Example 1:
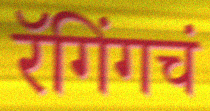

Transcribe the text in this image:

रॅगिंगचं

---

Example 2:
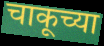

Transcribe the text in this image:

चाकूच्या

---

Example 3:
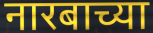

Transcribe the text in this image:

नारबाच्या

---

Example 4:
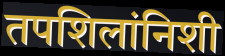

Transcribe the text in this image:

तपशिलांनिशी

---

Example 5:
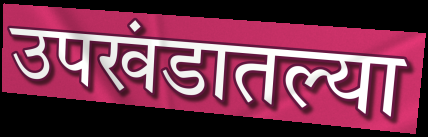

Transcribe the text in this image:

उपखंडातल्या